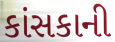
કાંસકાની